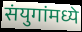
संयुगांमध्ये